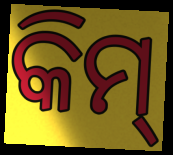
କିମ୍